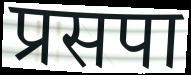
प्रसपा